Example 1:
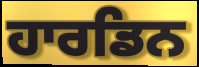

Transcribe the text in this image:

ਹਾਰਡਿਨ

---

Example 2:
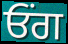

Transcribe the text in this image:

ਓਂਗ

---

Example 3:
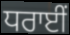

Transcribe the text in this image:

ਧਰਾਈਂ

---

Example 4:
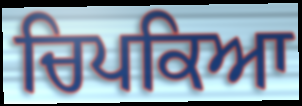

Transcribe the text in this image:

ਚਿਪਕਿਆ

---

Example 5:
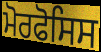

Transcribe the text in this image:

ਮੋਰਫੋਸਿਸ